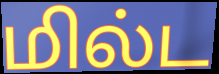
மில்ட